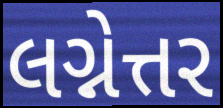
લગ્નેત્તર